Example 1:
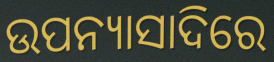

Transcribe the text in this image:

ଉପନ୍ୟାସାଦିରେ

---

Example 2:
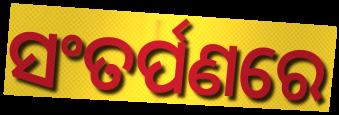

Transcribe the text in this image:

ସଂତର୍ପଣରେ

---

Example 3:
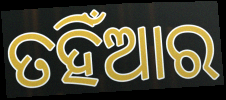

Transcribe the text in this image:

ତହିଁଆର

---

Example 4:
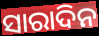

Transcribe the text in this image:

ସାରାଦିନ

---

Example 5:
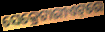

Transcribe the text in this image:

ସେକ୍ରେଟାରୀଏଟ୍‌ରେ